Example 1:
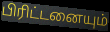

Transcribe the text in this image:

பிரிட்டனையும்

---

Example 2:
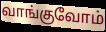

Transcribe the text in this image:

வாங்குவோம்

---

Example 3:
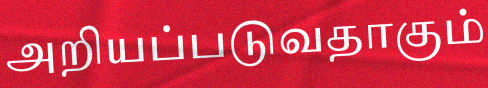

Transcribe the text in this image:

அறியப்படுவதாகும்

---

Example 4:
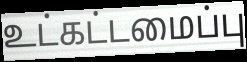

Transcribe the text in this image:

உட்கட்டமைப்பு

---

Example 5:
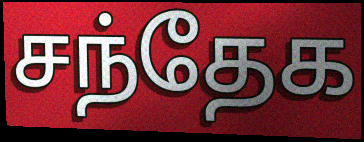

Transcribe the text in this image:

சந்தேக